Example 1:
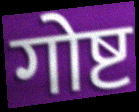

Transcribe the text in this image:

गोष्ट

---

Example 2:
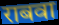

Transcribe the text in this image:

राबवा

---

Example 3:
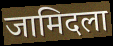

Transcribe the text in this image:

जामिदला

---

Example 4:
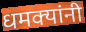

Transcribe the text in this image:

धमक्यांनी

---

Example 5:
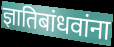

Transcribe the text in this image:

ज्ञातिबांधवांना